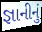
જ્ઞાનીનું